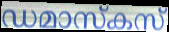
ഡമാസ്കസ്